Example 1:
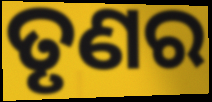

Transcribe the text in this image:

ତୃଣର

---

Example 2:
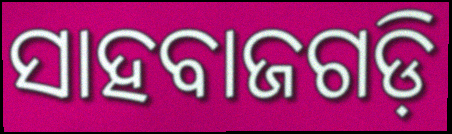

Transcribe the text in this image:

ସାହବାଜଗଡ଼ି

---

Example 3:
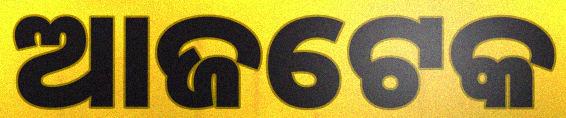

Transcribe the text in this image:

ଆଜଟେକ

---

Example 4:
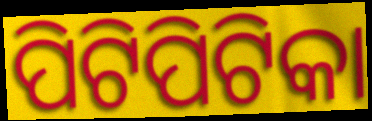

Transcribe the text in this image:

ପିଟିପିଟିକା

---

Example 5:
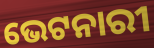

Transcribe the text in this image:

ଭେଟନାରୀ